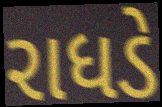
રાધડે